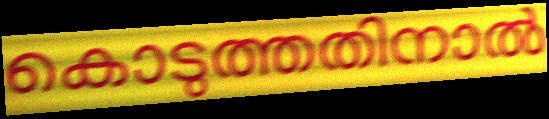
കൊടുത്തതിനാൽ